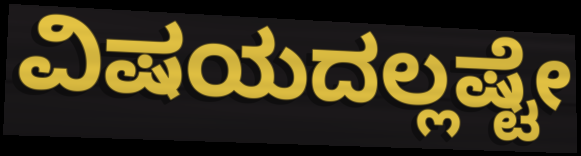
ವಿಷಯದಲ್ಲಷ್ಟೇ